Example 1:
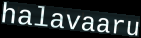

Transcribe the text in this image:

halavaaru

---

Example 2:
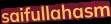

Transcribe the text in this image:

saifullahasm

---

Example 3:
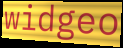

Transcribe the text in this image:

widgeo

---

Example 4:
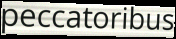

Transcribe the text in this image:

peccatoribus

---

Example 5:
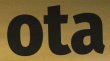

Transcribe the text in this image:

ota